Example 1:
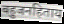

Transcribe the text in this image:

बहुजनहिताय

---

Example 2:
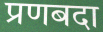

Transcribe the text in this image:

प्रणबदा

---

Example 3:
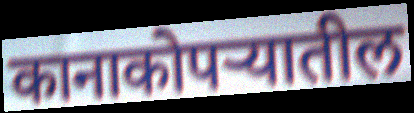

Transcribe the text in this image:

कानाकोपऱ्यातील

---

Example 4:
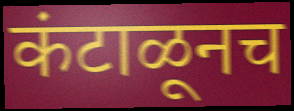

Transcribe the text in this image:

कंटाळूनच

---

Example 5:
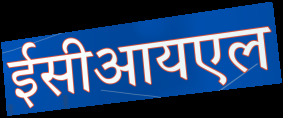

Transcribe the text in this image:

ईसीआयएल